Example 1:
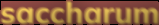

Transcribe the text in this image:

saccharum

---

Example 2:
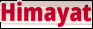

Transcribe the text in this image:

Himayat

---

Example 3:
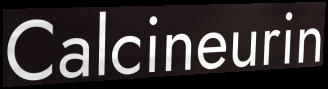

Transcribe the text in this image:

Calcineurin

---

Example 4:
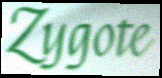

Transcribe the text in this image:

Zygote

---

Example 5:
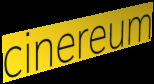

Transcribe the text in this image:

cinereum